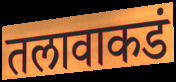
तलावाकडं